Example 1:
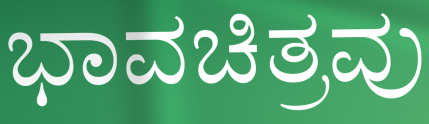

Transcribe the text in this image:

ಭಾವಚಿತ್ರವು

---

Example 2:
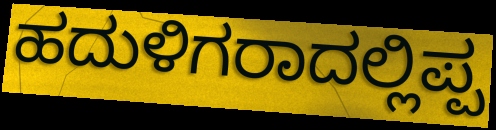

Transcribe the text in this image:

ಹದುಳಿಗರಾದಲ್ಲಿಪ್ಪ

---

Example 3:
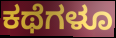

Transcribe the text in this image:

ಕಥೆಗಳೂ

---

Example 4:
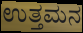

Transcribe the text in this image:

ಉತ್ತಮನ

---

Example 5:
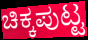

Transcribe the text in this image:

ಚಿಕ್ಕಪುಟ್ಟ